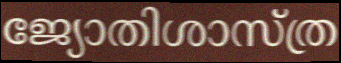
ജ്യോതിശാസ്ത്ര